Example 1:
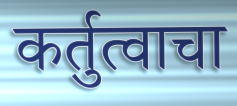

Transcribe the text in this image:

कर्तुत्वाचा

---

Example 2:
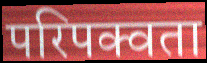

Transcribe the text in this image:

परिपक्‍वता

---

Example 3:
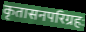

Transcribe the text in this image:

कृतासनपरिग्रहः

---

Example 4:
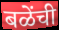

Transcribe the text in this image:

बळेंची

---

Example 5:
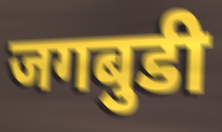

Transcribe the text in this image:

जगबुडी